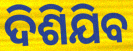
ଦିଶିଯିବ